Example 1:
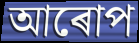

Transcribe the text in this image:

আৰোপ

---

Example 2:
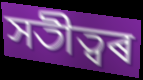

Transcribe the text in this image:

সতীত্বৰ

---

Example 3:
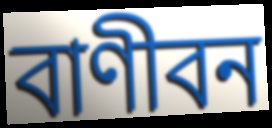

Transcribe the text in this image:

বাণীবন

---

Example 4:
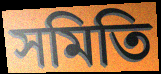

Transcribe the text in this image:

সমিতি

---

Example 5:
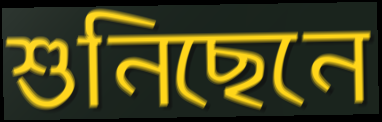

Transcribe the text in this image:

শুনিছেনে